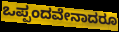
ಒಪ್ಪಂದವೇನಾದರೂ